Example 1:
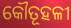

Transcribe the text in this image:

କୌତୂହଳୀ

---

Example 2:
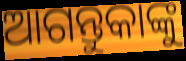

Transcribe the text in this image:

ଆଗନ୍ତୁକାଙ୍କୁ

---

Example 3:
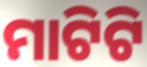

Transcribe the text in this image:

ମାଟିଟି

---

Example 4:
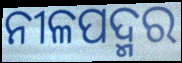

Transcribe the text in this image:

ନୀଳପଦ୍ମର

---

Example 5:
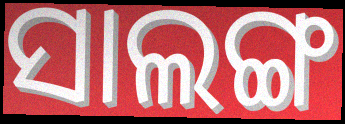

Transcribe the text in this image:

ସାଲଙ୍ଗ